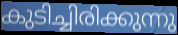
കുടിച്ചിരിക്കുന്നു